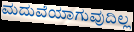
ಮದುವೆಯಾಗುವುದಿಲ್ಲ